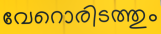
വേറൊരിടത്തും